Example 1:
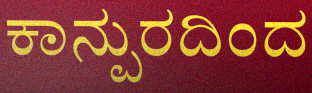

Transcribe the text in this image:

ಕಾನ್ಪುರದಿಂದ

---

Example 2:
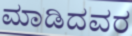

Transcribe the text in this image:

ಮಾಡಿದವರ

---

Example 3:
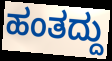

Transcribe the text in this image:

ಹಂತದ್ದು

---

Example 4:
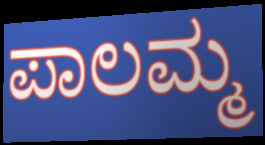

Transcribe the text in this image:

ಪಾಲಮ್ಮ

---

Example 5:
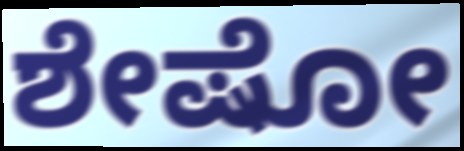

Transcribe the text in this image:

ಶೇಷೋ